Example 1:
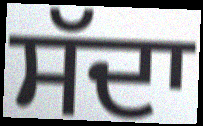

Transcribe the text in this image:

ਸੱਦਾ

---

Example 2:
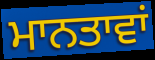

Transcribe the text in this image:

ਮਾਨਤਾਵਾਂ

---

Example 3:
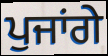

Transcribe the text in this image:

ਪੁਜਾਂਗੇ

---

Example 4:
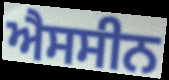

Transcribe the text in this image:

ਐਸਸੀਨ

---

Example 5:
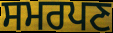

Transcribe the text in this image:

ਸਮਰਪਣ